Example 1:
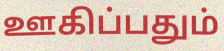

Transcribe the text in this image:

ஊகிப்பதும்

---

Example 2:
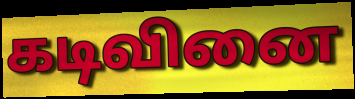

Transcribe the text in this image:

கடிவினை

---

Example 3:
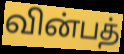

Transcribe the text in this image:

வின்பத்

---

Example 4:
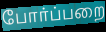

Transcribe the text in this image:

போர்ப்பறை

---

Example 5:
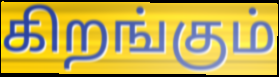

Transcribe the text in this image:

கிறங்கும்